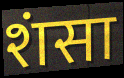
शंसा